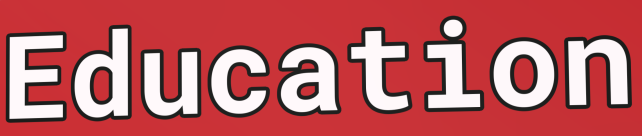
Education